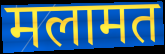
मलामत